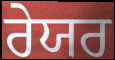
ਰੇਯਰ